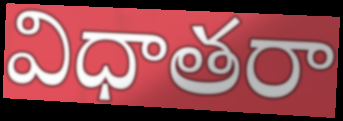
విధాతరా